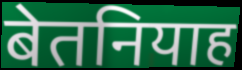
बेतनियाह